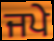
ਜਪੇ